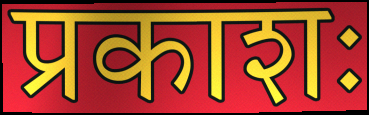
प्रकाशः